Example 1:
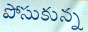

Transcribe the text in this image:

పోసుకున్న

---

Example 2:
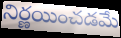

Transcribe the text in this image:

నిర్ణయించడమే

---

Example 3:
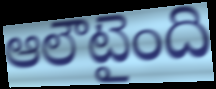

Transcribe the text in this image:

ఆలౌటైంది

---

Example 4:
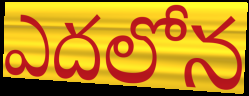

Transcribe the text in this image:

ఎదలోన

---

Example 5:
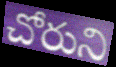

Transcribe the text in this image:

చోరుని